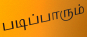
படிப்பாரும்